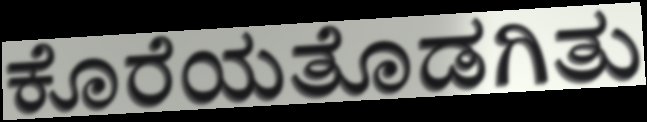
ಕೊರೆಯತೊಡಗಿತು